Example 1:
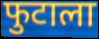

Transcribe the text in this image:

फुटाला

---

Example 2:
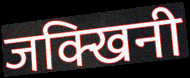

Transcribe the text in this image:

जक्खिनी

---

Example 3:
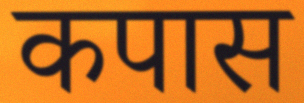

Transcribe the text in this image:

कपास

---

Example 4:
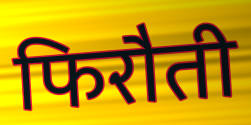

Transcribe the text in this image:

फिरौती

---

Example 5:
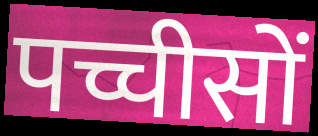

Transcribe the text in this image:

पच्चीसों